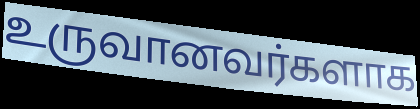
உருவானவர்களாக